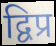
द्विप्र